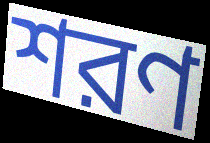
শরণ